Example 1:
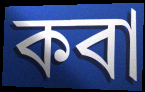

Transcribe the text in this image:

কবা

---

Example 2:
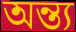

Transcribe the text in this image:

অন্ত্য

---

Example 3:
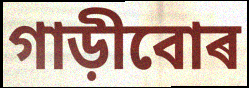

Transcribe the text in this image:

গাড়ীবোৰ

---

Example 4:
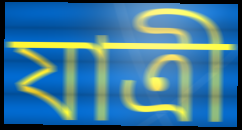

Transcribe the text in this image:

যাত্ৰী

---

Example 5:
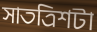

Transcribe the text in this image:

সাতত্ৰিশটা